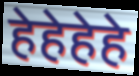
हेहेहेहे